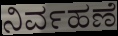
ನಿರ್ವಹಣೆ